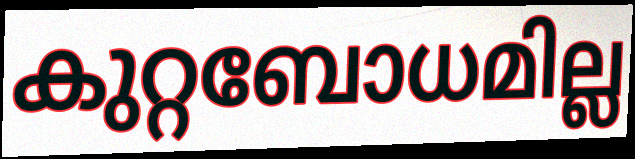
കുറ്റബോധമില്ല